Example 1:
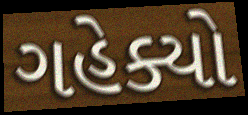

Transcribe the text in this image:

ગહેક્યો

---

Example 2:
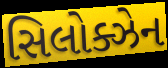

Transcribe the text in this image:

સિલોક્ઝેન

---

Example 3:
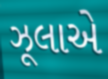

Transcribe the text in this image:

ઝૂલાએ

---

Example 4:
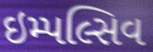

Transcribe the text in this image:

ઇમ્પલ્સિવ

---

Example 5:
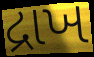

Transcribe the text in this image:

દ્રાખ